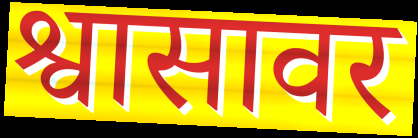
श्वासावर